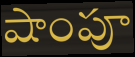
షాంపూ